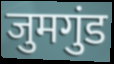
जुमगुंड